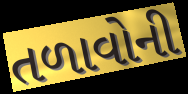
તળાવોની